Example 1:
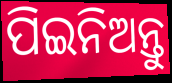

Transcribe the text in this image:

ପିଇନିଅନ୍ତୁ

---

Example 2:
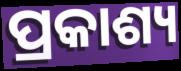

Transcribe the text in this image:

ପ୍ରକାଶ୍ୟ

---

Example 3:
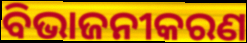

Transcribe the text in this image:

ବିଭାଜନୀକରଣ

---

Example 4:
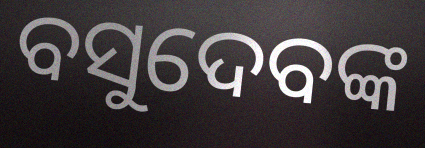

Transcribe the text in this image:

ବସୁଦେବଙ୍କ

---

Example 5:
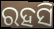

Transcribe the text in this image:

ରହସି